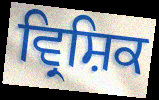
ਵ੍ਰਿਸ਼ਿਕ